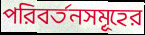
পরিবর্তনসমূহের